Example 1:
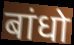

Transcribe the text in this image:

बांधो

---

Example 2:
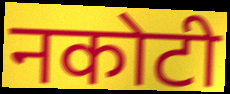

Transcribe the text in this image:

नकोटी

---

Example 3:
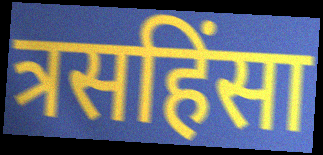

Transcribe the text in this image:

त्रसहिंसा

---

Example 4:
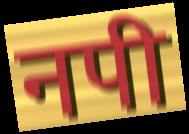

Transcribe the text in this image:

नपी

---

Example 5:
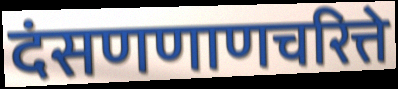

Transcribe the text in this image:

दंसणणाणचरित्ते